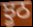
ਝੂਠ